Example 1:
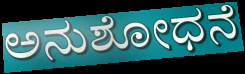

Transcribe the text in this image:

ಅನುಶೋಧನೆ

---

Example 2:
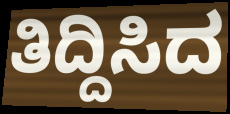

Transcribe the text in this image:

ತಿದ್ದಿಸಿದ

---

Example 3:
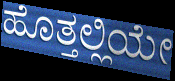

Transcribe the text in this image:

ಹೊತ್ತಲ್ಲಿಯೇ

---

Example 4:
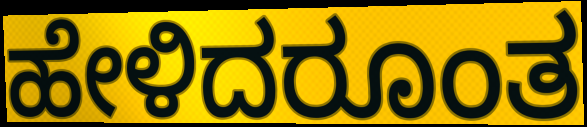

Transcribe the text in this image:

ಹೇಳಿದರೂಂತ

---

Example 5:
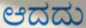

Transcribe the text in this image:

ಆದದು